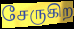
சேருகிற